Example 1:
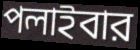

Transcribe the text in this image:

পলাইবার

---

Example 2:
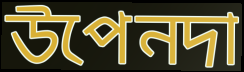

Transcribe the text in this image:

উপেনদা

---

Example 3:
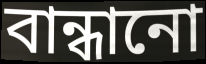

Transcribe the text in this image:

বান্ধানো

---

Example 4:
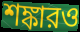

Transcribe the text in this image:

শঙ্কারও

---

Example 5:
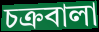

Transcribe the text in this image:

চক্রবালা